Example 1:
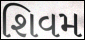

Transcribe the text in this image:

શિવમ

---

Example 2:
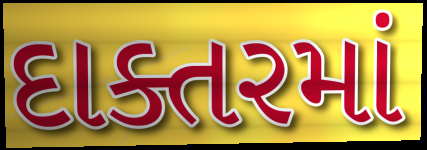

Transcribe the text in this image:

દાક્તરમાં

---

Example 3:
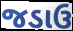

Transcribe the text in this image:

જડાઉ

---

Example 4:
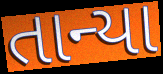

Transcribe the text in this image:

તાન્યા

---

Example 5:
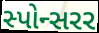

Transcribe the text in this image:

સ્પોન્સરર